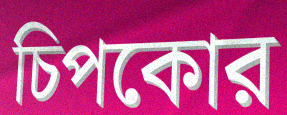
চিপকোর